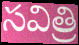
సవిత్రి